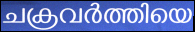
ചക്രവർത്തിയെ